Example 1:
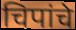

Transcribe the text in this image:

चिपांचे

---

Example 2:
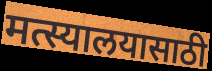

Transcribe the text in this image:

मत्स्यालयासाठी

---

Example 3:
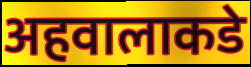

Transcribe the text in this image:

अहवालाकडे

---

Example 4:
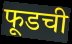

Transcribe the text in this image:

फूडची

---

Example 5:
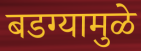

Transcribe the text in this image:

बडग्यामुळे